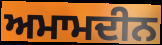
ਅਮਾਮਦੀਨ